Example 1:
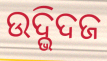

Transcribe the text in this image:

ଉଦ୍ଭିଦଜ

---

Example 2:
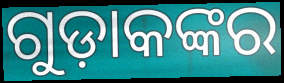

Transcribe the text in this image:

ଗୁଡ଼ାକଙ୍କର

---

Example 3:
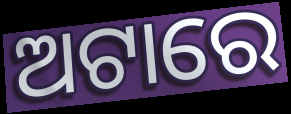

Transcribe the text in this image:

ଅଟାରେ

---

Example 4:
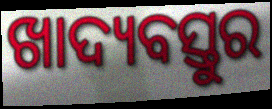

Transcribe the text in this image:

ଖାଦ୍ୟବସ୍ତୁର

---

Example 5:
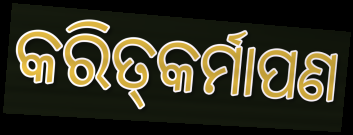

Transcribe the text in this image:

କରିତ୍‌କର୍ମାପଣ